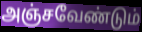
அஞ்சவேண்டும்